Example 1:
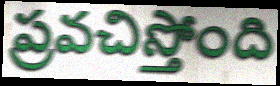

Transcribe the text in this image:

ప్రవచిస్తోంది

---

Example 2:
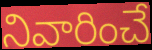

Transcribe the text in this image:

నివారించే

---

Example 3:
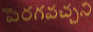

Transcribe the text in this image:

పెరగవచ్చని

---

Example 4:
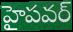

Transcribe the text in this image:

హైపవర్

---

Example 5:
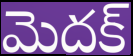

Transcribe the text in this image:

మెదక్